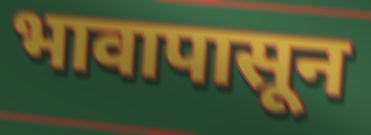
भावापासून